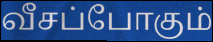
வீசப்போகும்